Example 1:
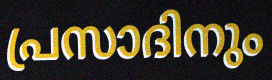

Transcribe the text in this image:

പ്രസാദിനും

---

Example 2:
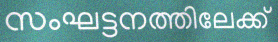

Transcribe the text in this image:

സംഘട്ടനത്തിലേക്ക്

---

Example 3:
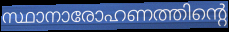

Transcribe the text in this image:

സ്ഥാനാരോഹണത്തിന്റെ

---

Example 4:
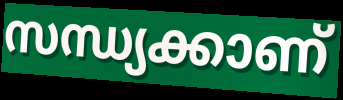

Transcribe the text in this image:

സന്ധ്യക്കാണ്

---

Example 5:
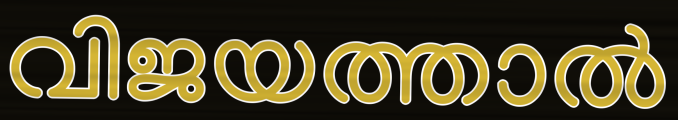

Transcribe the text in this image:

വിജയത്താൽ